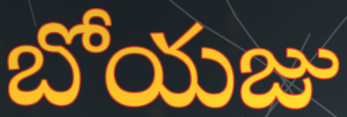
బోయజు